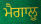
ਮੈਗਾਲੂ